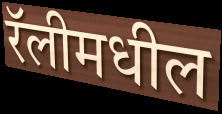
रॅलीमधील